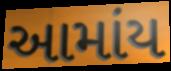
આમાંય